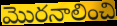
మొరనాలించి